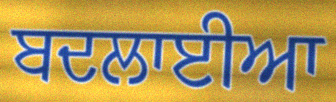
ਬਦਲਾਈਆ